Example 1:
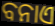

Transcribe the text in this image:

ବନାଏ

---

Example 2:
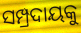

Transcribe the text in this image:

ସମ୍ପ୍ରଦାୟକୁ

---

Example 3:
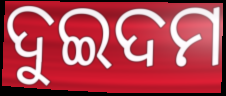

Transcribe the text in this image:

ଦୁଇଦମ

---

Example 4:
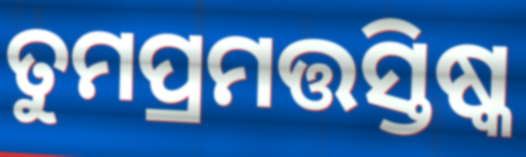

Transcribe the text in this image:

ତୁମପ୍ରମତ୍ତସ୍ତିଷ୍କ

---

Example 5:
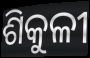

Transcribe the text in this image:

ଶିକୁଳୀ